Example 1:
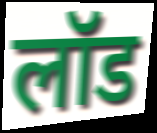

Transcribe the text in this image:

लॉड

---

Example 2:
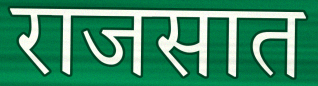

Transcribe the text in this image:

राजसात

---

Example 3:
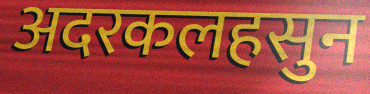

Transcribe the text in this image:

अदरकलहसुन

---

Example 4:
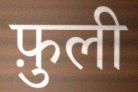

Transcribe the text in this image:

फ़ुली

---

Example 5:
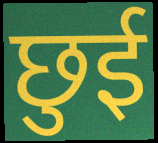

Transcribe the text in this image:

छुई